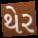
થેર